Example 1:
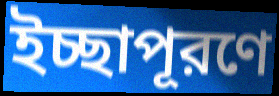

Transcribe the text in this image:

ইচ্ছাপূরণে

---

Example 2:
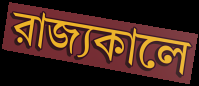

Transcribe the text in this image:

রাজ্যকালে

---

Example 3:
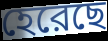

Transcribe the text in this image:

হেরেছে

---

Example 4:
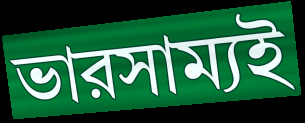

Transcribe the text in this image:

ভারসাম্যই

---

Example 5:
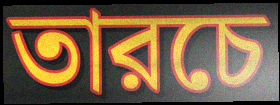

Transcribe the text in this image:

তারচে